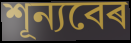
শূন্যবেৰ